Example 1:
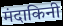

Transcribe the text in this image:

मंदाकिनी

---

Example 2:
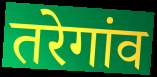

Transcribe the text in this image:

तरेगांव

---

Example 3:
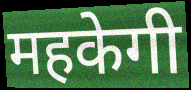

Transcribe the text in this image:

महकेगी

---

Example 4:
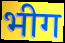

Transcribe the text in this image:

भीग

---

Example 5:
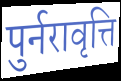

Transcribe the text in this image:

पुर्नरावृत्ति